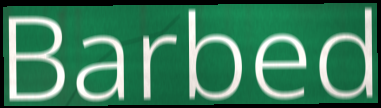
Barbed